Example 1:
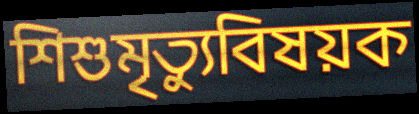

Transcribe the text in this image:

শিশুমৃত্যুবিষয়ক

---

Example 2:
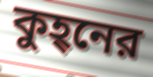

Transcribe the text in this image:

কুহ্‌নের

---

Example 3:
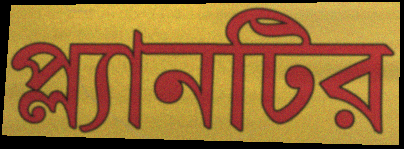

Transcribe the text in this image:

প্ল্যানটির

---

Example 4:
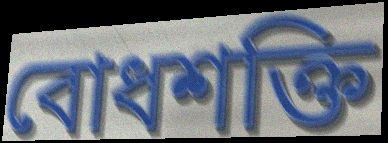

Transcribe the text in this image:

বোধশক্তি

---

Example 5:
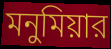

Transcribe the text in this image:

মনুমিয়ার